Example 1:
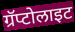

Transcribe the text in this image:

ग्रॅप्टोलाइट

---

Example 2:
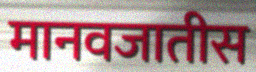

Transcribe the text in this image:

मानवजातीस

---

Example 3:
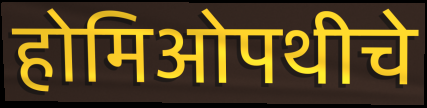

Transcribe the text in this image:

होमिओपथीचे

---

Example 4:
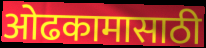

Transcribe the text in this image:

ओढकामासाठी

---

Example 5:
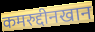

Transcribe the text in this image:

कमरुद्दीनखान